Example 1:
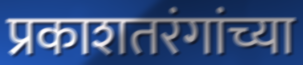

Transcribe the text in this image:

प्रकाशतरंगांच्या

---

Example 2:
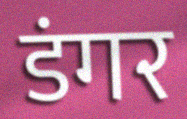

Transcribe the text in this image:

डंगर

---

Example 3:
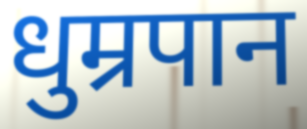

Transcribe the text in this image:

धुम्रपान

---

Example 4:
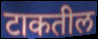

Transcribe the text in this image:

टाकतील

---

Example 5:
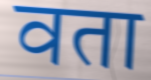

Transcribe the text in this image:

वता